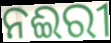
ନଈରୀ